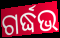
ଗର୍ଦ୍ଧଭ